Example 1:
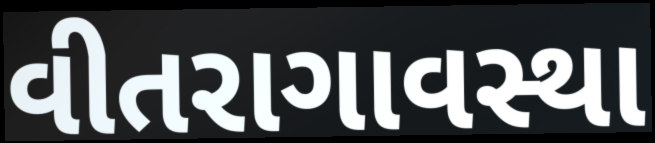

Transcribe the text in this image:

વીતરાગાવસ્થા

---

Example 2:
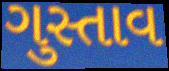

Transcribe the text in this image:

ગુસ્તાવ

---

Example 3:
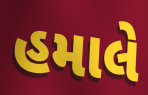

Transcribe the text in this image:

હમાલે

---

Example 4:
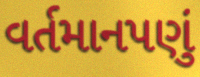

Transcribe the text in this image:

વર્તમાનપણું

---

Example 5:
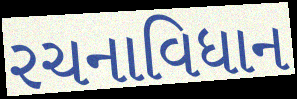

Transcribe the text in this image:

રચનાવિધાન